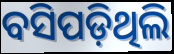
ବସିପଡ଼ିଥିଲି